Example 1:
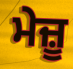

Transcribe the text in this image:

ਮੇਜ਼ੂ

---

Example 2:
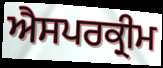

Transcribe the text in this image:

ਐਸਪਰਕ੍ਰੀਮ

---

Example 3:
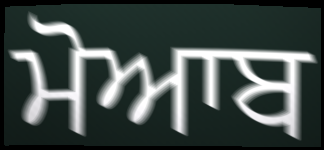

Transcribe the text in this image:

ਮੋਆਬ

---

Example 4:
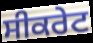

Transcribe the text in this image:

ਸੀਕਰੇਟ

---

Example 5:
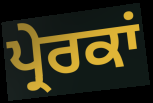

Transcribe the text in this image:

ਪ੍ਰੇਰਕਾਂ